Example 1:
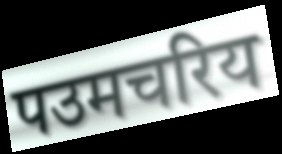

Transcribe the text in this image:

पउमचरिय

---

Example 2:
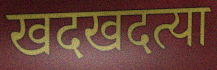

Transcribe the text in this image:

खदखदत्या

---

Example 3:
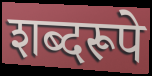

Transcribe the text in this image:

शब्दरूपे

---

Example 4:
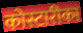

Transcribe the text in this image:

कोस्टारीका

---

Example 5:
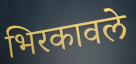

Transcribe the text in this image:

भिरकावले